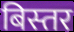
बिस्‍तर